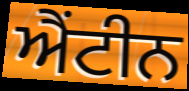
ਐਂਟੀਨ